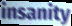
insanity